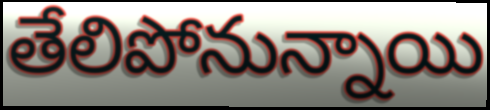
తేలిపోనున్నాయి